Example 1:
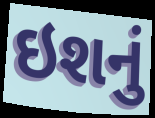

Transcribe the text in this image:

ઇશનું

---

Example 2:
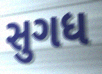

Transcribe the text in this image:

સુગધ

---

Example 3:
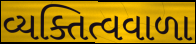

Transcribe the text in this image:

વ્યક્તિત્વવાળા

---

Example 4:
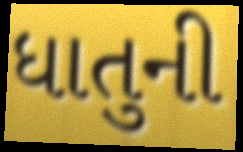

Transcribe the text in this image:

ધાતુની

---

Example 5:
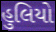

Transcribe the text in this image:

હુલિયો